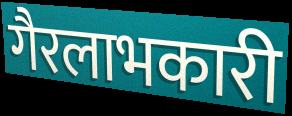
गैरलाभकारी